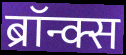
ब्रॉन्क्स